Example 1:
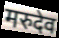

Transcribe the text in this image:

मरुदेव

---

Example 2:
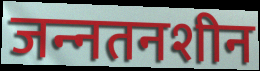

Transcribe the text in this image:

जन्नतनशीन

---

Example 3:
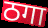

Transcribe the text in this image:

ठगा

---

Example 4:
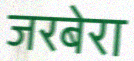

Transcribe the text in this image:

जरबेरा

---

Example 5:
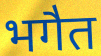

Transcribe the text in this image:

भगैत